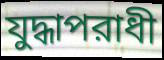
যুদ্ধাপরাধী